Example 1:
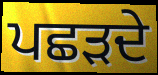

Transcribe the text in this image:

ਪਛੜਦੇ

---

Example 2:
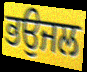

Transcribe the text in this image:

ਭਉਜਲ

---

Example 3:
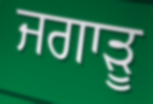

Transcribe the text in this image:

ਜਗਾੜੂ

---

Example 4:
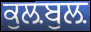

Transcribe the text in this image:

ਕੁਲ਼ਬੁਲ਼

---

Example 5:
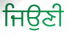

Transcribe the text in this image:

ਜਿਉਣੀ